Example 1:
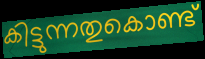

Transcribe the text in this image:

കിട്ടുന്നതുകൊണ്ട്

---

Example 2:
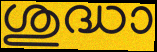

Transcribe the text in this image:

ശുദ്ധാ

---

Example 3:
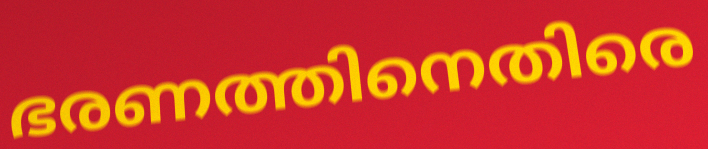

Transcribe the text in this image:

ഭരണത്തിനെതിരെ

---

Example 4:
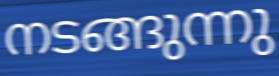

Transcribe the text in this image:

നടങ്ങുന്നു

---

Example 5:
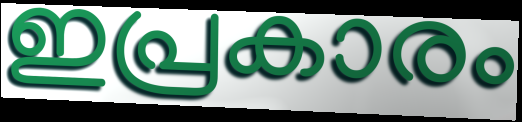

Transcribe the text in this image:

ഇപ്രകാരം